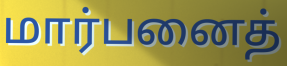
மார்பனைத்